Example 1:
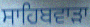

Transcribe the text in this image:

ਸਾਹਿਬਵਾੜਾ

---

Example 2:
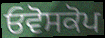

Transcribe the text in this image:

ਓਵੋਸਕੋਪ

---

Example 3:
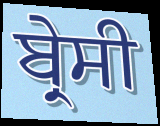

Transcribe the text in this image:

ਬ੍ਰੇਸੀ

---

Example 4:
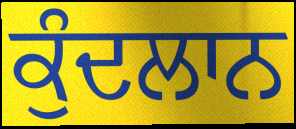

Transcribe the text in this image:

ਕੁੰਦਲਾਨ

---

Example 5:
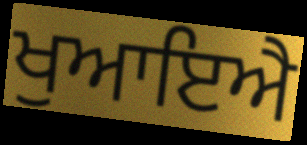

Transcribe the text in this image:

ਖੁਆਇਐ